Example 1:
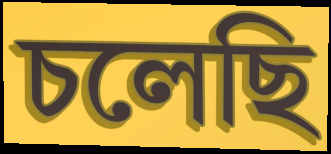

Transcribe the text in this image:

চলেছি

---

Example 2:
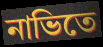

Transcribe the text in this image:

নাভিতে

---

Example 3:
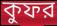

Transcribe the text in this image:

কুফর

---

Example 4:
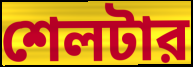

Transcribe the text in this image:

শেলটার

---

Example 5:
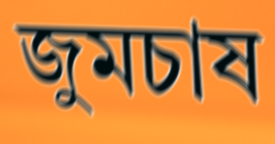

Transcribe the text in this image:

জুমচাষ